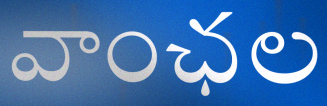
వాంఛల